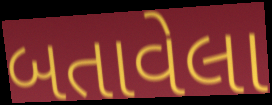
બતાવેલા